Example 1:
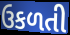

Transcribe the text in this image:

ઉકળતી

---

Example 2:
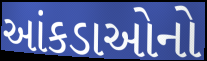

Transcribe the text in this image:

આંકડાઓનો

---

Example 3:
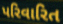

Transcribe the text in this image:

પરિવારિત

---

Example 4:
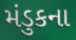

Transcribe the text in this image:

મંડુકના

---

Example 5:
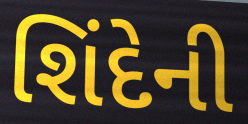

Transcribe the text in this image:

શિંદેની